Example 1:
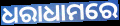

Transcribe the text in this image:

ଧରାଧାମରେ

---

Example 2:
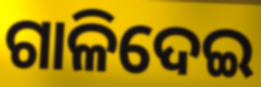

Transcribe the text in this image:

ଗାଳିଦେଇ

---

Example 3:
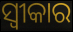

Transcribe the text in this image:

ସ୍ଵୀକାର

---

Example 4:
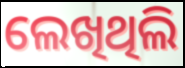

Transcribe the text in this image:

ଲେଖିଥିଲି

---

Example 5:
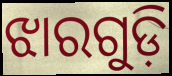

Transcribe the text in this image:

ଝାରଗୁଡ଼ି